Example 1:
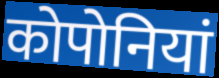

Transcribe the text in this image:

कोपोनियां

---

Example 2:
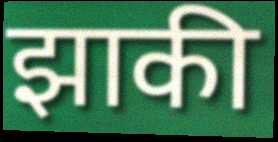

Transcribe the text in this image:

झाकी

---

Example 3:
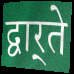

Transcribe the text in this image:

द्वार्ते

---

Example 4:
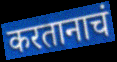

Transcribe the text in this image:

करतानाचं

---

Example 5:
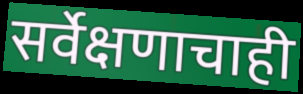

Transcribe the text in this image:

सर्वेक्षणाचाही